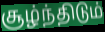
சூழ்ந்திடும்